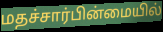
மதச்சார்பின்மையில்